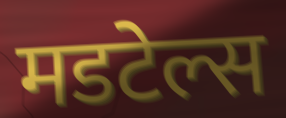
मडटेल्स